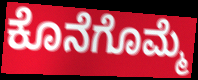
ಕೊನೆಗೊಮ್ಮೆ